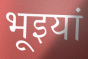
भूइयां